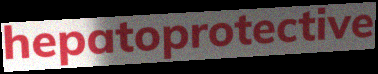
hepatoprotective